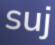
suj